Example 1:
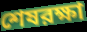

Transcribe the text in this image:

শেষরক্ষা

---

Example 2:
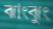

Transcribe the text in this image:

ঝাংঝুং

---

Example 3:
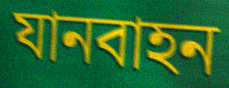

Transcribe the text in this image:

যানবাহন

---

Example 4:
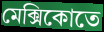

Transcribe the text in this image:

মেক্সিকোতে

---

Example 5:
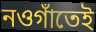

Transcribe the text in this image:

নওগাঁতেই